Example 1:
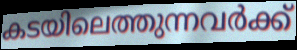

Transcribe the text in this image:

കടയിലെത്തുന്നവർക്ക്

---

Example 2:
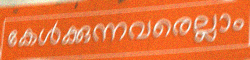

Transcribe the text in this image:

കേൾക്കുന്നവരെല്ലാം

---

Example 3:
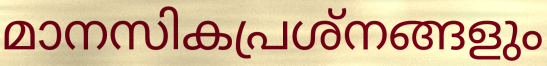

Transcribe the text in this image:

മാനസികപ്രശ്നങ്ങളും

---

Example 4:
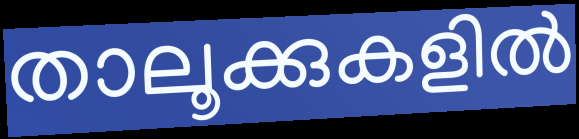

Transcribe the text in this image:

താലൂക്കുകളിൽ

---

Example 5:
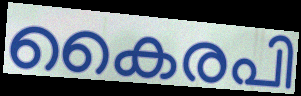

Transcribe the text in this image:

കൈരപി